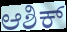
ಆಶಿಕ್